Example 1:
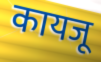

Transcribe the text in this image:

कायजू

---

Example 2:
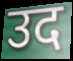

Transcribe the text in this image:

उद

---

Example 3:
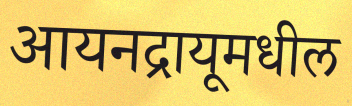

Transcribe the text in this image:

आयनद्रायूमधील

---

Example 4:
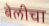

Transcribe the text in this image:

बेलीचा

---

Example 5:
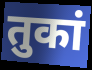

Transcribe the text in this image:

तुकां